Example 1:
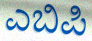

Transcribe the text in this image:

ಎಬಿಪಿ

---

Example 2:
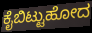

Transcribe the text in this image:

ಕೈಬಿಟ್ಟುಹೋದ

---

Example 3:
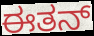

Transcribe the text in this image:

ಈತನ್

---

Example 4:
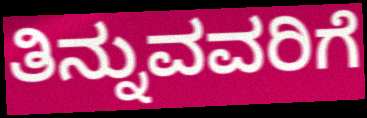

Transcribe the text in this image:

ತಿನ್ನುವವರಿಗೆ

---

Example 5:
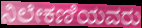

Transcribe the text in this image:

ನಿಲೇಕಣಿಯವರು